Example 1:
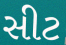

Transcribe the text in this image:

સીટ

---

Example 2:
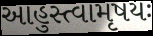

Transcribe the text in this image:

આહુસ્ત્વામૃષયઃ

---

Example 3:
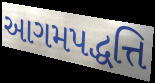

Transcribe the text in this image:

આગમપદ્ધત્તિ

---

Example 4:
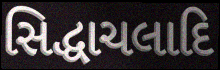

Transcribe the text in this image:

સિદ્ધાચલાદિ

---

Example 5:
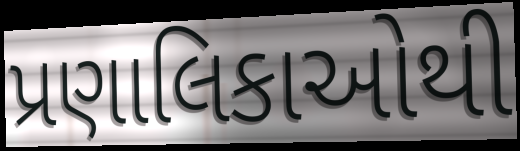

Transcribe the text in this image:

પ્રણાલિકાઓથી